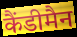
कैंडीमैन